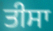
ਤੀਸਾ